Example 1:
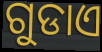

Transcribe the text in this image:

ଗୁଡାଏ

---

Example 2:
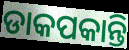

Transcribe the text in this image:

ଡାକପକାନ୍ତି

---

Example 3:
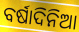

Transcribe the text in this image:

ବର୍ଷାଦିନିଆ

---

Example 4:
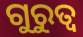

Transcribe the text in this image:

ଗୁରୁତ୍ୱ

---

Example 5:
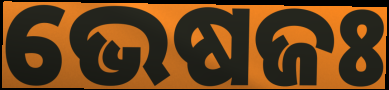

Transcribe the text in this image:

ଭେଷଜଃ